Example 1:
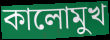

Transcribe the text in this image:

কালোমুখ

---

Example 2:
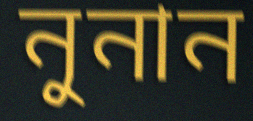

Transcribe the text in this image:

নুনান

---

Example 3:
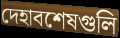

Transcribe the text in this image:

দেহাবশেষগুলি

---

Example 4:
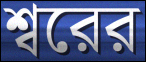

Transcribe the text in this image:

শ্বরের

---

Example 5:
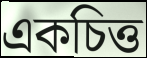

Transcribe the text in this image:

একচিত্ত